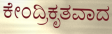
ಕೇಂದ್ರಿಕೃತವಾದ